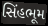
સિંહભૂમ